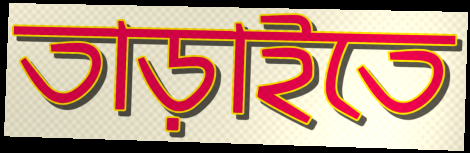
তাড়াইতে